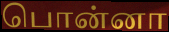
பொன்னா